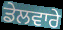
ਡੇਲਵਾਰੇ